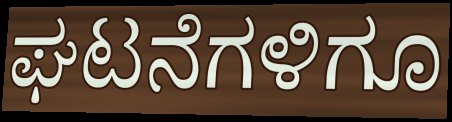
ಘಟನೆಗಳಿಗೂ